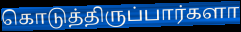
கொடுத்திருப்பார்களா